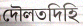
দৌলতদিহি